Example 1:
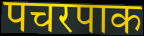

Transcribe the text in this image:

पचरपाक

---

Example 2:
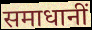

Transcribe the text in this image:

समाधानीं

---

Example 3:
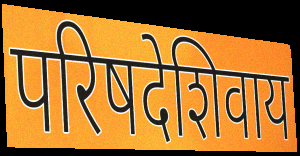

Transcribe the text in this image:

परिषदेशिवाय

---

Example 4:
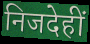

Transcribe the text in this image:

निजदेहीं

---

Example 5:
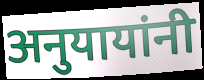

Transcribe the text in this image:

अनुयायांनी